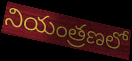
నియంత్రణలో